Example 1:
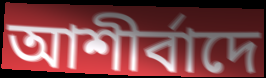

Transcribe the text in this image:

আশীর্বাদে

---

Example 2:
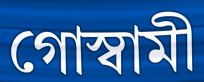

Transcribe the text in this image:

গোস্বামী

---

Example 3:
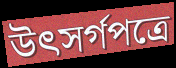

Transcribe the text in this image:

উৎসর্গপত্রে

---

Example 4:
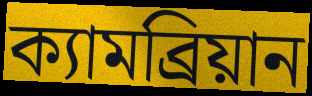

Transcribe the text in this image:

ক্যামব্রিয়ান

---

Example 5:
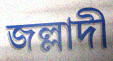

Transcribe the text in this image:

জল্লাদী